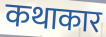
कथाकार